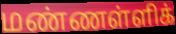
மண்ணள்ளிக்